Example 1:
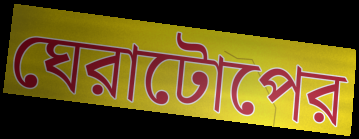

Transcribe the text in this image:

ঘেরাটোপের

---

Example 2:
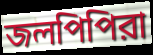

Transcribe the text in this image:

জলপিপিরা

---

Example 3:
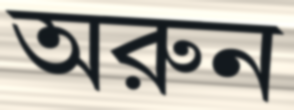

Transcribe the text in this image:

অরুন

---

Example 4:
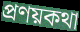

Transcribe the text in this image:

প্রণয়কথা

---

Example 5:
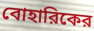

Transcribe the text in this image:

বোহারিকের